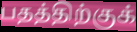
பதத்திற்குக்